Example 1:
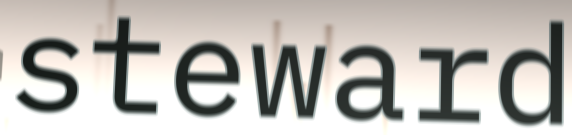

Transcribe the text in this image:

steward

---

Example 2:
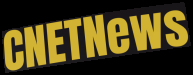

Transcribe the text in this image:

CNETNews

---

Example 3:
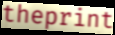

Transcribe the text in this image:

theprint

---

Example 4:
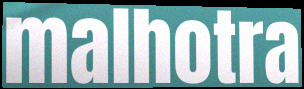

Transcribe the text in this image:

malhotra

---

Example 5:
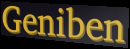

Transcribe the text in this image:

Geniben